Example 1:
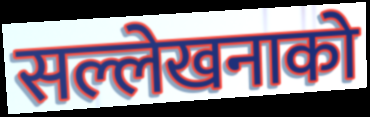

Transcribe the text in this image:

सल्लेखनाको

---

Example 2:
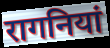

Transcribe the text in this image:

रागनियां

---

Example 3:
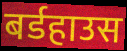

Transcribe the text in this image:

बर्डहाउस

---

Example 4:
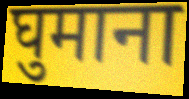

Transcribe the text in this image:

घुमाना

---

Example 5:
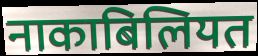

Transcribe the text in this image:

नाकाबिलियत